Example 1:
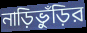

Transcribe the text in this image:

নাড়িভুঁড়ির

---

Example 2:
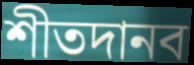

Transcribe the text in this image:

শীতদানব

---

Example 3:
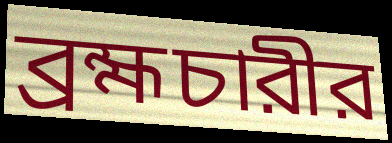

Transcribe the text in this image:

ব্রহ্মচারীর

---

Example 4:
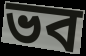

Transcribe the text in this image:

ভব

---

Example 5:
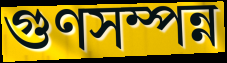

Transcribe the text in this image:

গুণসম্পন্ন